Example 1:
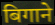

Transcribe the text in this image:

बिगाने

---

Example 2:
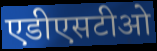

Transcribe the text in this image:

एडीएसटीओ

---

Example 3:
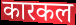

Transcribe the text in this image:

कारकल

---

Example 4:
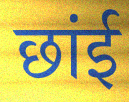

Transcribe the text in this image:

छांई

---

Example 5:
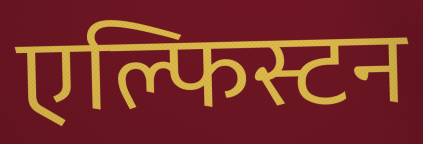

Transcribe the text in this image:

एल्फिस्टन